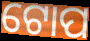
ଟୋପ